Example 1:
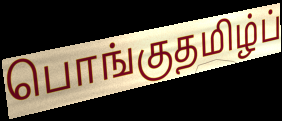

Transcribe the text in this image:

பொங்குதமிழ்ப்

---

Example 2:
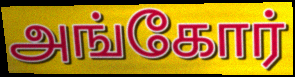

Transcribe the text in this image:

அங்கோர்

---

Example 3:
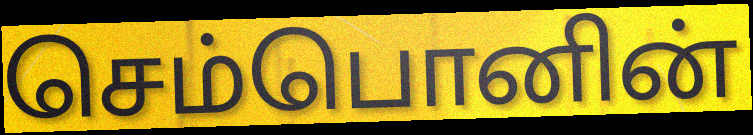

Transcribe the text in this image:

செம்பொனின்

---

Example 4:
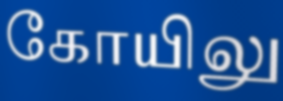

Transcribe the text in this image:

கோயிலு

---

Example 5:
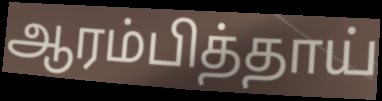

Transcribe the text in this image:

ஆரம்பித்தாய்